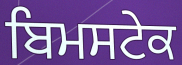
ਬਿਮਸਟੇਕ